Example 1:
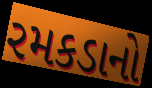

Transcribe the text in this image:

રમકડાનો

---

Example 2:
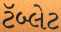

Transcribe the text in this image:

ટૅબ્લેટ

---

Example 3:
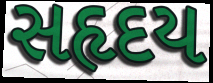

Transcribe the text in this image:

સહૃદય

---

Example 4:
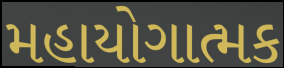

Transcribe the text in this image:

મહાયોગાત્મક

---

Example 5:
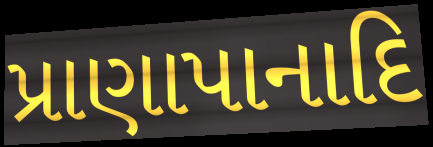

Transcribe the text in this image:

પ્રાણાપાનાદિ